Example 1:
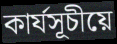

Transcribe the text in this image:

কাৰ্যসূচীয়ে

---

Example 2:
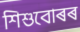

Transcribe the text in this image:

শিশুবোৰৰ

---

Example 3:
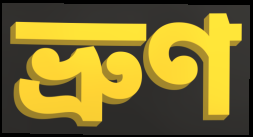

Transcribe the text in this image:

ভ্ৰুণ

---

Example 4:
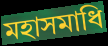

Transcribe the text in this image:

মহাসমাধি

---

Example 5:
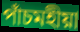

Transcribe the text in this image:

পাঁচমহীয়া